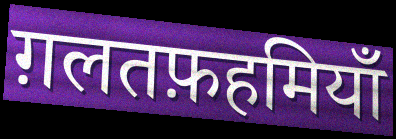
ग़लतफ़हमियाँ